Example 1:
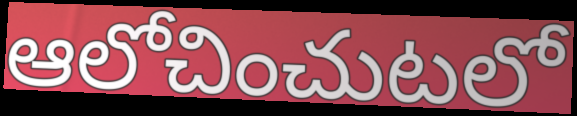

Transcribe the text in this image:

ఆలోచించుటలో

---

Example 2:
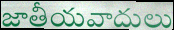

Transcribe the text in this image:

జాతీయవాదులు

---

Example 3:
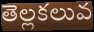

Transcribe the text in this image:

తెల్లకలువ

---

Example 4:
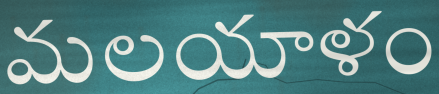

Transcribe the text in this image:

మలయాళం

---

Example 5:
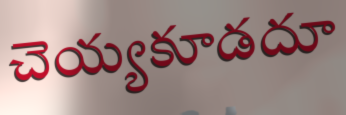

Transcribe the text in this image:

చెయ్యకూడదూ